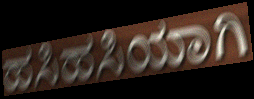
ಹಸಿಹಸಿಯಾಗಿ